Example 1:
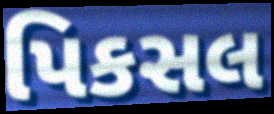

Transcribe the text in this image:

પિકસલ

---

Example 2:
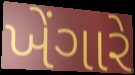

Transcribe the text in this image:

ખેંગારે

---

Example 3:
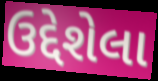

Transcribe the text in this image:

ઉદ્દેશેલા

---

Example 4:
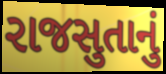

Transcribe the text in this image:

રાજસુતાનું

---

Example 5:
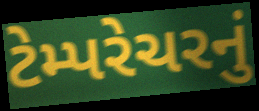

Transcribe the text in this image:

ટેમ્પરેચરનું